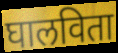
घालविता